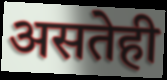
असतेही